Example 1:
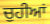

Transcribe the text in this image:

ਚੁਹੀਆਂ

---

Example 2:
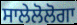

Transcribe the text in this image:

ਸਾਲੇਲੋਲੋਗਾ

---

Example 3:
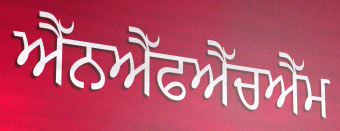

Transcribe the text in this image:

ਐੱਨਐੱਫਐੱਚਐੱਮ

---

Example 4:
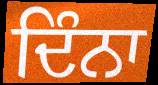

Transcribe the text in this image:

ਦਿੰਨਾ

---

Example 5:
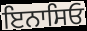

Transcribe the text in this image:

ਇਨਾਸਿਓ